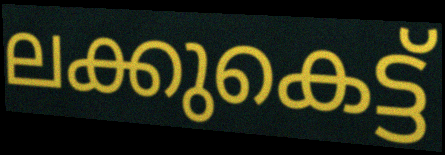
ലക്കുകെട്ട്